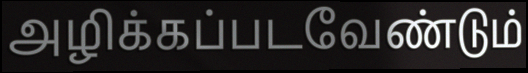
அழிக்கப்படவேண்டும்